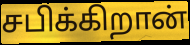
சபிக்கிறான்